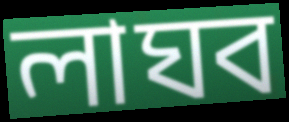
লাঘব